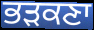
ਭੜਕਣਾ